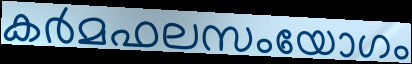
കർമഫലസംയോഗം